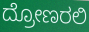
ದ್ರೋಣರಲಿ